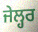
ਜੇਲ੍ਹਰ